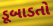
ડૂબાડતો